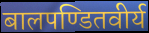
बालपण्डितवीर्य